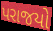
પરાજયો